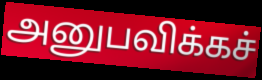
அனுபவிக்கச்